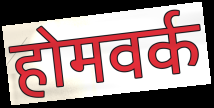
होमवर्क